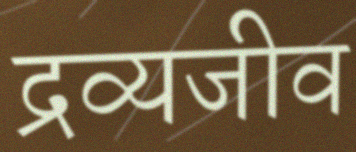
द्रव्यजीव